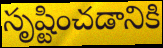
సృష్టించడానికి